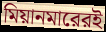
মিয়ানমারেরই